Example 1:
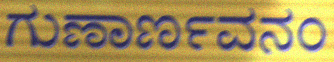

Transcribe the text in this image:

ಗುಣಾರ್ಣವನಂ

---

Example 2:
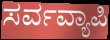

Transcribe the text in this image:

ಸರ್ವವ್ಯಾಪಿ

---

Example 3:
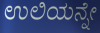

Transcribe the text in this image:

ಉಲಿಯನ್ನೇ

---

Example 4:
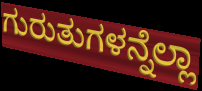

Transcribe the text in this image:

ಗುರುತುಗಳನ್ನೆಲ್ಲಾ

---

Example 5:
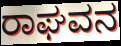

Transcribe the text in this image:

ರಾಘವನ